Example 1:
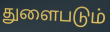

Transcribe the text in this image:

துளைபடும்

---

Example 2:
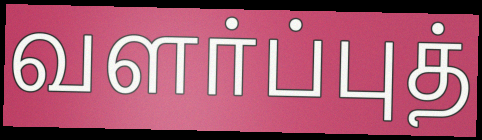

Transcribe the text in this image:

வளர்ப்புத்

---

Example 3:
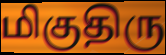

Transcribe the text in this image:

மிகுதிரு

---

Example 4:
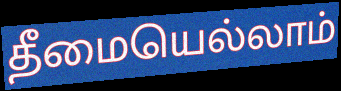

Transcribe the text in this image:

தீமையெல்லாம்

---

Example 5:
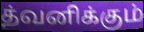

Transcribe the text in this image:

த்வனிக்கும்